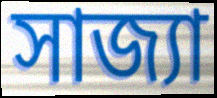
সাজ্যা